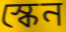
স্কেন